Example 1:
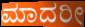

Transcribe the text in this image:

ಮಾದರೀ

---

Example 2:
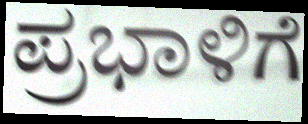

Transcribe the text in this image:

ಪ್ರಭಾಳಿಗೆ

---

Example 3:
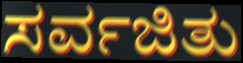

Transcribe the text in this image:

ಸರ್ವಜಿತು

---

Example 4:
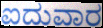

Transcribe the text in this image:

ಐದುವಾರ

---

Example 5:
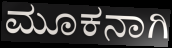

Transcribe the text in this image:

ಮೂಕನಾಗಿ